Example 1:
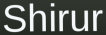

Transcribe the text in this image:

Shirur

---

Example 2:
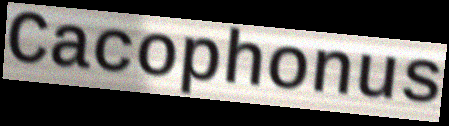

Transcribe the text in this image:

Cacophonus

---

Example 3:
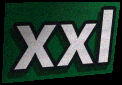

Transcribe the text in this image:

xxl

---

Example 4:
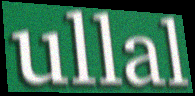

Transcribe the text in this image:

ullal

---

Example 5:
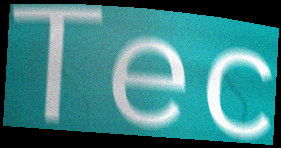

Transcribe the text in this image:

Tec